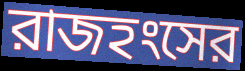
রাজহংসের